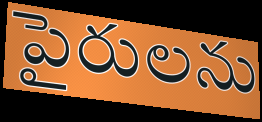
పైరులను